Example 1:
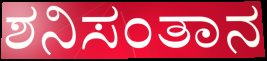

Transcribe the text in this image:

ಶನಿಸಂತಾನ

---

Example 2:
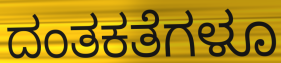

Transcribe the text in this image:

ದಂತಕತೆಗಳೂ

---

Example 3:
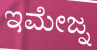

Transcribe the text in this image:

ಇಮೇಜ್ನ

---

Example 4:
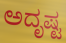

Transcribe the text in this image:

ಅದೃಷ್ಟ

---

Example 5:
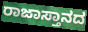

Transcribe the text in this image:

ರಾಜಾಸ್ತಾನದ